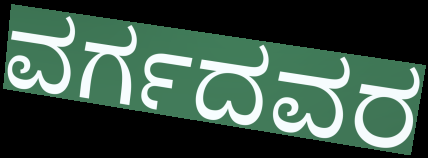
ವರ್ಗದವರ